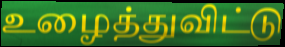
உழைத்துவிட்டு